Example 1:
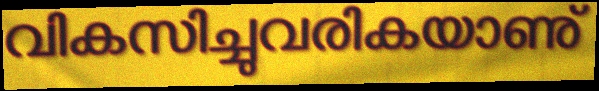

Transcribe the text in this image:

വികസിച്ചുവരികയാണു്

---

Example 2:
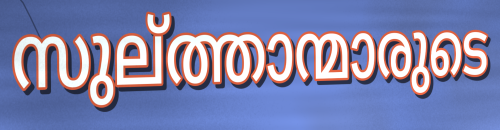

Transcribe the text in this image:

സുല്ത്താന്മാരുടെ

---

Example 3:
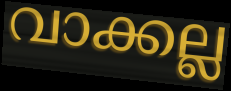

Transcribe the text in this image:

വാക്കല്ല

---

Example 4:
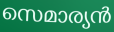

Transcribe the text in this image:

സെമാര്യൻ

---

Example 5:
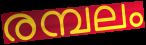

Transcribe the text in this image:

രമ്പലം